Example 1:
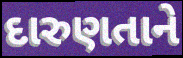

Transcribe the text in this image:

દારુણતાને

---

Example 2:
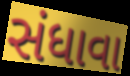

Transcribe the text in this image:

સંધાવા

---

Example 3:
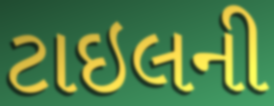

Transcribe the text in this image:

ટાઇલની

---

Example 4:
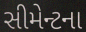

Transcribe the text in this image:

સીમેન્ટના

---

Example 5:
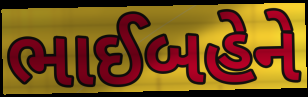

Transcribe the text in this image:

ભાઈબહેને